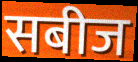
सबीज